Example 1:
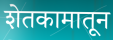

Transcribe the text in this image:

शेतकामातून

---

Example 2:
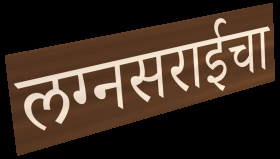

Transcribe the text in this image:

लग्नसराईचा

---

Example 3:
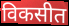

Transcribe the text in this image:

विकसीत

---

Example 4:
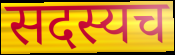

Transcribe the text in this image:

सदस्यच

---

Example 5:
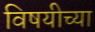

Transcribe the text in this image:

विषयीच्या